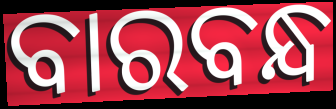
ବାରବନ୍ଧ